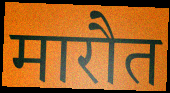
मारौत